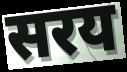
सरय